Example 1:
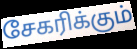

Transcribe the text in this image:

சேகரிக்கும்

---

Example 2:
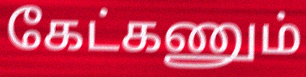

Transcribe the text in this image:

கேட்கணும்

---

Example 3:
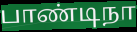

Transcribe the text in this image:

பாண்டிநா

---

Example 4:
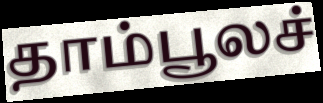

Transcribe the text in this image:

தாம்பூலச்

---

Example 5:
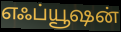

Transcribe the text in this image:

எஃப்யூஷன்